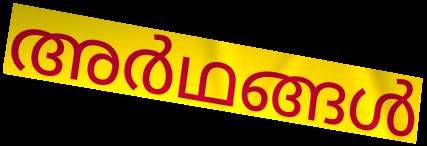
അർഥങ്ങൾ